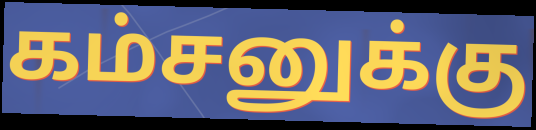
கம்சனுக்கு